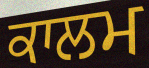
ਕਾਲਮ